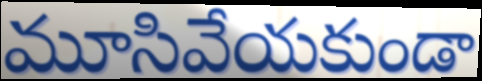
మూసివేయకుండా